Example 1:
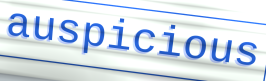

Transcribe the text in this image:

auspicious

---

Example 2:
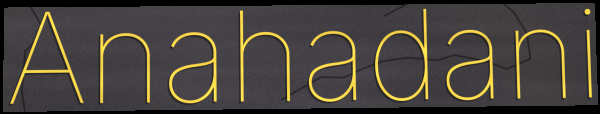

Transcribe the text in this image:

Anahadani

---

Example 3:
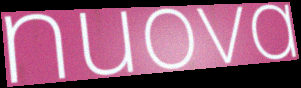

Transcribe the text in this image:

nuova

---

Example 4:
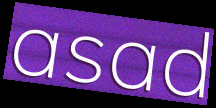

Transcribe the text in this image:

asad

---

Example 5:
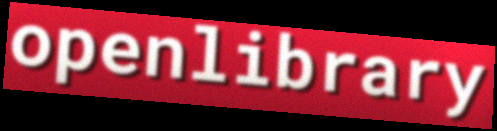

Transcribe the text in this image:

openlibrary